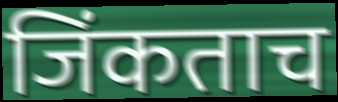
जिंकताच